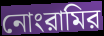
নোংরামির